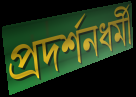
প্রদর্শনধর্মী